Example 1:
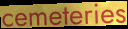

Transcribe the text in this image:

cemeteries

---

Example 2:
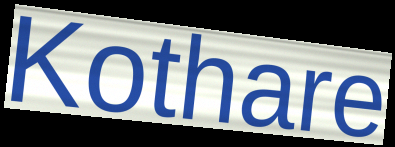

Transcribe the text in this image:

Kothare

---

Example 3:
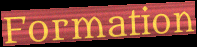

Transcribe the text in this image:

Formation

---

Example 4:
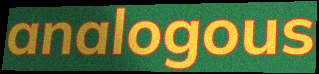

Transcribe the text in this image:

analogous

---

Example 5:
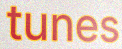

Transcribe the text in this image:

tunes